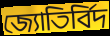
জ্যোতিৰ্বিদ